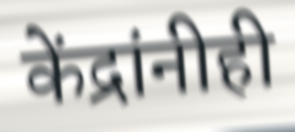
केंद्रांनीही